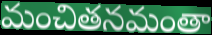
మంచితనమంతా